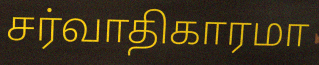
சர்வாதிகாரமா